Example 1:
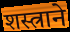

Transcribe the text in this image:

शस्त्राने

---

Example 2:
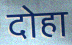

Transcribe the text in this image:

दोहा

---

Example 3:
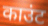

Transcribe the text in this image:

काउंट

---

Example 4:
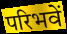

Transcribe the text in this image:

परिभवें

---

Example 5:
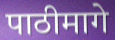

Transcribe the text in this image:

पाठीमागे